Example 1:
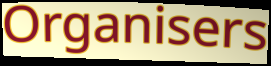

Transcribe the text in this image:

Organisers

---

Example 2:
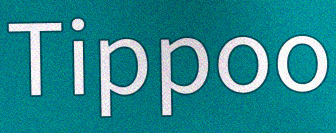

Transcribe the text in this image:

Tippoo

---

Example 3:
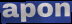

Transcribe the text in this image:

apon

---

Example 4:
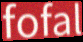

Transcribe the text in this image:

fofal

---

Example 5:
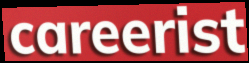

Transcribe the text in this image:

careerist